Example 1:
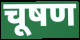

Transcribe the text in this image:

चूषण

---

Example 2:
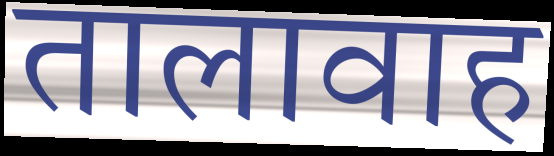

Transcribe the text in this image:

तालावाह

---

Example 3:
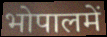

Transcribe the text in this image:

भोपालमें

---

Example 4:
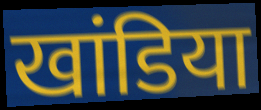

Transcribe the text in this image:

खांडिया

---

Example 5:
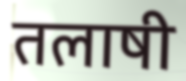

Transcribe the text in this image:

तलाषी